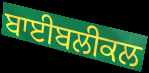
ਬਾਈਬਲੀਕਲ